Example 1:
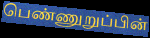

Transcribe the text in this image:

பெண்ணுறுப்பின்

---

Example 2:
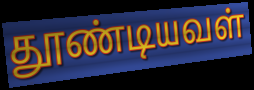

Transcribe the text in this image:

தூண்டியவள்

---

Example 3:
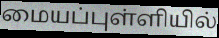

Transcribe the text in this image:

மையப்புள்ளியில்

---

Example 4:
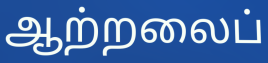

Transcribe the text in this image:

ஆற்றலைப்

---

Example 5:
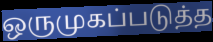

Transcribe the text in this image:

ஒருமுகப்படுத்த